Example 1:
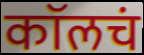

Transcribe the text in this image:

कॉलचं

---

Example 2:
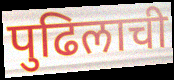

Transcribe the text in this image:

पुढिलाची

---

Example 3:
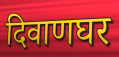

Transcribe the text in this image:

दिवाणघर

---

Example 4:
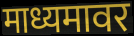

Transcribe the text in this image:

माध्यमावर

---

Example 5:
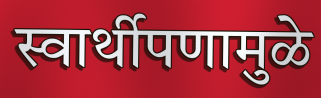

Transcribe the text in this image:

स्वार्थीपणामुळे